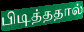
பிடித்ததால்